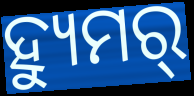
ହ୍ୟୁମର୍